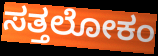
ಸತ್ತಲೋಕಂ